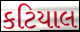
કટિયાલ